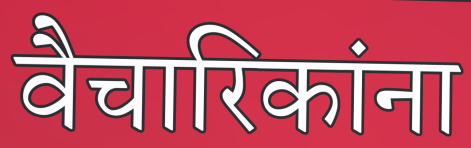
वैचारिकांना